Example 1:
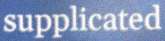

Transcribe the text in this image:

supplicated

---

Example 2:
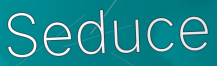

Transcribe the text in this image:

Seduce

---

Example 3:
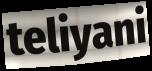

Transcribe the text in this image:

teliyani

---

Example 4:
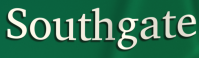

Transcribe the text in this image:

Southgate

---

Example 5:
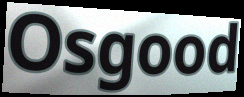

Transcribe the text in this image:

Osgood